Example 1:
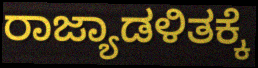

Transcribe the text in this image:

ರಾಜ್ಯಾಡಳಿತಕ್ಕೆ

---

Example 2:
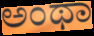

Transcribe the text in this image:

ಅಂಥಾ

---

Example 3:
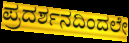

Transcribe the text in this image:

ಪ್ರದರ್ಶನದಿಂದಲೇ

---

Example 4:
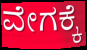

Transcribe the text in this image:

ವೇಗಕ್ಕೆ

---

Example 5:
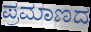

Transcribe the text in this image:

ಪ್ರಮಾಣದ